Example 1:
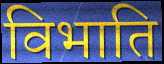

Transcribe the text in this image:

विभाति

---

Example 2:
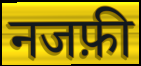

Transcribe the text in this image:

नजफ़ी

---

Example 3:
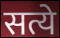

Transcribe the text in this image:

सत्ये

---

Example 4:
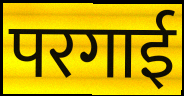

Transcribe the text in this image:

परगाई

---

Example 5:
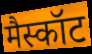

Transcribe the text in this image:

मैस्कॉट